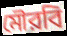
মৌরবি